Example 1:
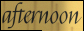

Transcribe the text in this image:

afternoon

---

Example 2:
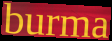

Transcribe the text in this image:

burma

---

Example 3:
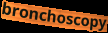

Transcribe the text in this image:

bronchoscopy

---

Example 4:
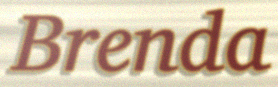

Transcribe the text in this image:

Brenda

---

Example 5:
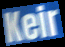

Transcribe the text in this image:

Keir